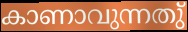
കാണാവുന്നതു്